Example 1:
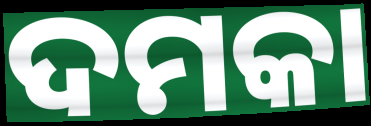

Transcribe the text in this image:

ଦମକା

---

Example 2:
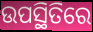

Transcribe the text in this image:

ଉପସ୍ଥିତିରେ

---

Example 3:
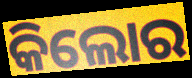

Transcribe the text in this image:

କିଲୋର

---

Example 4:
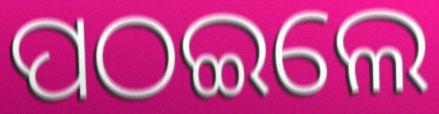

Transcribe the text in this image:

ପଠଇଲେ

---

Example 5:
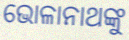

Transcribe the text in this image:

ଭୋଳାନାଥଙ୍କୁ